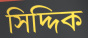
সিদ্দিক